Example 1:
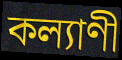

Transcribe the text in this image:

কল্যাণী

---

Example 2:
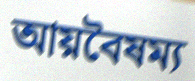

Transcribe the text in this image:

আয়বৈষম্য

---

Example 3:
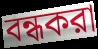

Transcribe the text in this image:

বন্ধকরা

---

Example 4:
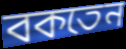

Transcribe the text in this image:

বকতেন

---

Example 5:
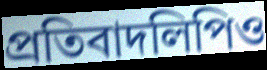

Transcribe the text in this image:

প্রতিবাদলিপিও